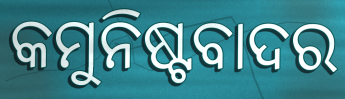
କମୁନିଷ୍ଟବାଦର